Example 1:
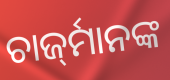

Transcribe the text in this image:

ଚାର୍ଜ୍‍ମାନଙ୍କ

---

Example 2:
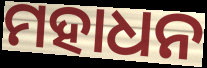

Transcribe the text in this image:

ମହାଧନ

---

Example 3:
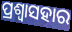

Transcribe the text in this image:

ପ୍ରଶ୍ଵାସହାର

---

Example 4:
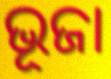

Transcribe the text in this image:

ଭୂଜା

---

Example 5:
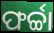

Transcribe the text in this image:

ଫର୍ଚ୍ଚା